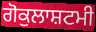
ਗੋਕੁਲਾਸ਼ਟਮੀ